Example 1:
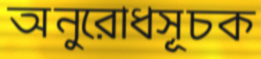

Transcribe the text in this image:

অনুরোধসূচক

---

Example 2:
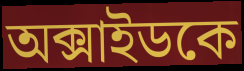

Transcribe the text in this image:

অক্সাইডকে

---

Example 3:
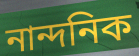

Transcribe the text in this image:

নান্দনিক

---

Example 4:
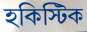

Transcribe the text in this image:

হকিস্টিক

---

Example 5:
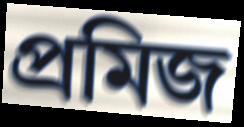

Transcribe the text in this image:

প্রমিজ